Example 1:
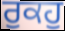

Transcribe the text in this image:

ਰੁਕਹੁ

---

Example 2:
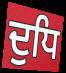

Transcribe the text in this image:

ਦੁਧਿ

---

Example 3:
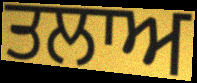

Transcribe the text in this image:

ਤਲਾਅ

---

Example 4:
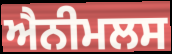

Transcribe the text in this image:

ਐਨੀਮਲਸ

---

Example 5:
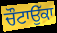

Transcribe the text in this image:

ਚੌਟਾਉੱਕਾ